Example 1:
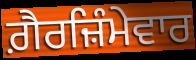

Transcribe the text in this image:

ਗ਼ੈਰਜ਼ਿੰਮੇਵਾਰ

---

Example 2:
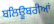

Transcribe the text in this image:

ਬਲਿਊਬਰੀਆਂ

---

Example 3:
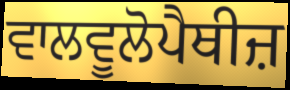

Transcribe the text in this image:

ਵਾਲਵੂਲੋਪੈਥੀਜ਼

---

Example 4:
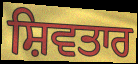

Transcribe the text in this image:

ਸ਼ਿਵਤਾਰ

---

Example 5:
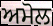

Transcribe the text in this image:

ਅਮੋਲ